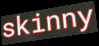
skinny